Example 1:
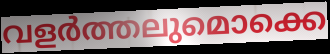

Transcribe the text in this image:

വളർത്തലുമൊക്കെ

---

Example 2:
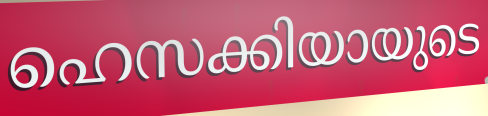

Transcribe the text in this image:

ഹെസക്കിയായുടെ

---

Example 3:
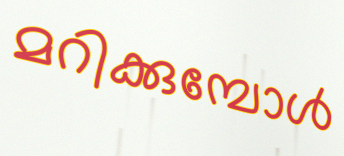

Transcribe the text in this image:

മറിക്കുമ്പോൾ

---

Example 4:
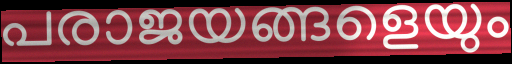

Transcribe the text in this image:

പരാജയങ്ങളെയും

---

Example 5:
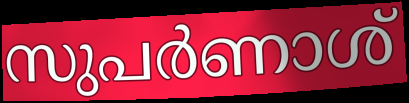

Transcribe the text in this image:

സുപർണാശ്